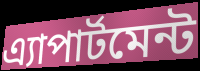
এ্যাপার্টমেন্ট